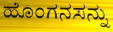
ಹೊಂಗನಸನ್ನು